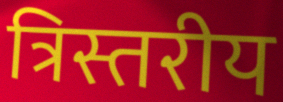
त्रिस्तरीय